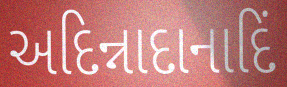
અદિન્નાદાનાદિં